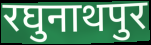
रघुनाथपुर